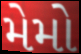
મેમો